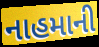
નાહમાની